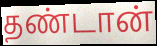
தண்டான்